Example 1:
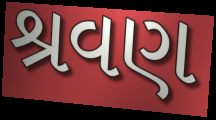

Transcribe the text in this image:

શ્રવણ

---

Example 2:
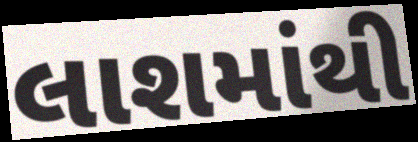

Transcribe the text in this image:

લાશમાંથી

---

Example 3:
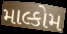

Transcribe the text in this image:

માલ્કોમ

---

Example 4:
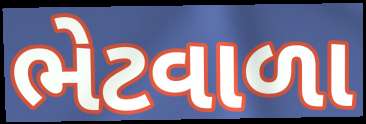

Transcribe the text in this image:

ભેટવાળા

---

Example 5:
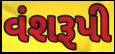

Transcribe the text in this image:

વંશરૂપી